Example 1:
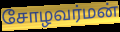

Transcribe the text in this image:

சோழவர்மன்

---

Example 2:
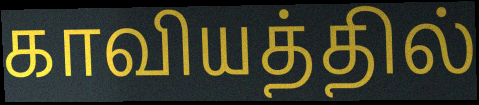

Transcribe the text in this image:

காவியத்தில்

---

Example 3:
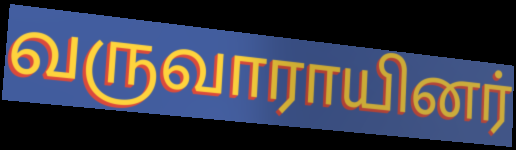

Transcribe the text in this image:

வருவாராயினர்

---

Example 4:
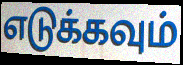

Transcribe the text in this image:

எடுக்கவும்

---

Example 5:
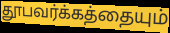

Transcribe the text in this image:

தூபவர்க்கத்தையும்